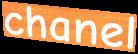
chanel